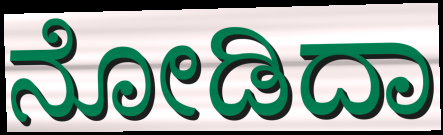
ನೋಡಿದಾ